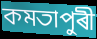
কমতাপুৰী